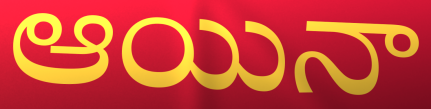
ఆయినా